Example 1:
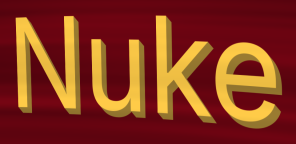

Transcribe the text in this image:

Nuke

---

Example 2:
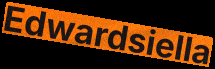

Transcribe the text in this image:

Edwardsiella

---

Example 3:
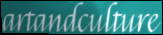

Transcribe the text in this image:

artandculture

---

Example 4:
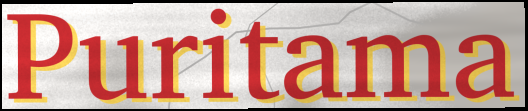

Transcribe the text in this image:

Puritama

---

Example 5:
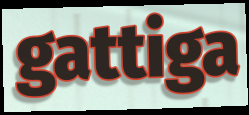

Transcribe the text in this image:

gattiga